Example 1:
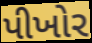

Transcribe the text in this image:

પીખોર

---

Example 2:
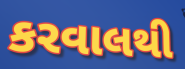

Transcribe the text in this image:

કરવાલથી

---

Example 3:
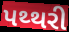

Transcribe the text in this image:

પથ્થરી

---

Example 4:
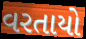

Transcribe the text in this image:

વરતાયો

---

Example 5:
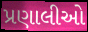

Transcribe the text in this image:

પ્રણાલીઓ